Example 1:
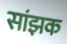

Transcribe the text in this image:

सांझक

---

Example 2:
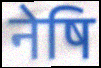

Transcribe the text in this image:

नेषि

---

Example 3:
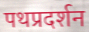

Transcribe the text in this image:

पथप्रदर्शन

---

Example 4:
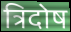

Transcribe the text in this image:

त्रिदोष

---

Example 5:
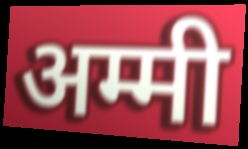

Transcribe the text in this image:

अम्मी